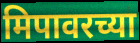
मिपावरच्या